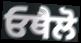
ਓਥੈਲੋ